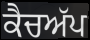
ਕੈਚਅੱਪ